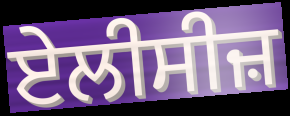
ਏਲੀਸੀਜ਼